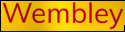
Wembley